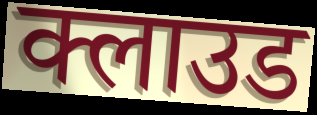
क्लाउड